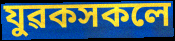
যুৱকসকলে